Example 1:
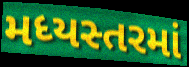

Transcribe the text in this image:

મધ્યસ્તરમાં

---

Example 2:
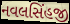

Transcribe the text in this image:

નવલસિંહજી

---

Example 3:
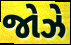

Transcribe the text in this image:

જોઝે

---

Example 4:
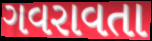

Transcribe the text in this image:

ગવરાવતા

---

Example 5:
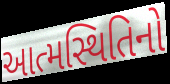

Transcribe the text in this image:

આત્મસ્થિતિનો